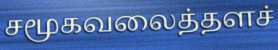
சமூகவலைத்தளச்